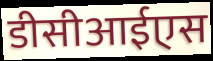
डीसीआईएस